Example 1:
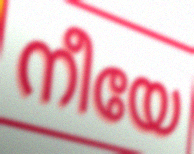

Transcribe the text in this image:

നീയേ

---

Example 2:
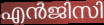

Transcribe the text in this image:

എൻജിസി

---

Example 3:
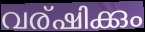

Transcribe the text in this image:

വര്ഷിക്കും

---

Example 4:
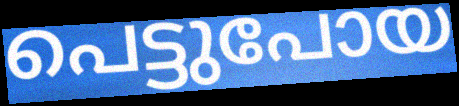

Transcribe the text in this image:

പെട്ടുപോയ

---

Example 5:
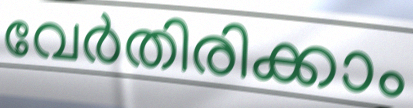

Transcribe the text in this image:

വേർതിരിക്കാം